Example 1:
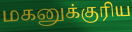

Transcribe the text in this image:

மகனுக்குரிய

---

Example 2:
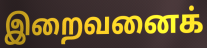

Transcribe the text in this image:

இறைவனைக்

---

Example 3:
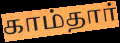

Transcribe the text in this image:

காம்தார்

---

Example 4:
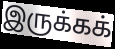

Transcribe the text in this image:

இருக்கக்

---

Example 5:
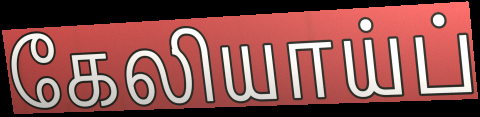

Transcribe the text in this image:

கேலியாய்ப்